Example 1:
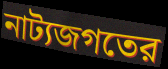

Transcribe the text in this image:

নাট্যজগতের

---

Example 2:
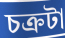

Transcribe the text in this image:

চক্রটা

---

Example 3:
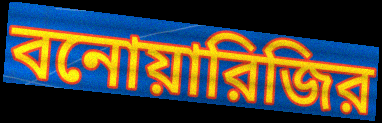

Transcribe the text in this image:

বনোয়ারিজির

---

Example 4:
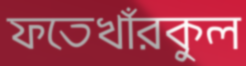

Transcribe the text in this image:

ফতেখাঁরকুল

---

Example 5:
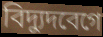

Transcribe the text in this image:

বিদ্যুদবেগে